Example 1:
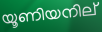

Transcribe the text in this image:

യൂണിയനില്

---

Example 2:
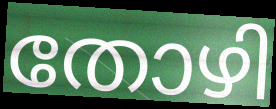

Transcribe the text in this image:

തോഴി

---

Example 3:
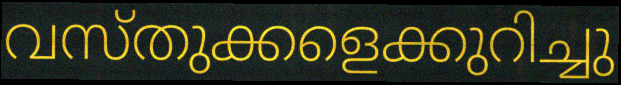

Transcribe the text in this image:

വസ്തുക്കളെക്കുറിച്ചു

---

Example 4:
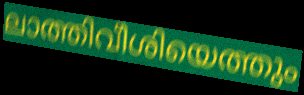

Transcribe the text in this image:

ലാത്തിവീശിയെത്തും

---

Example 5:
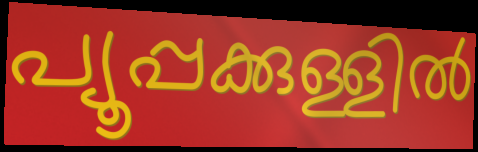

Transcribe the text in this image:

പ്യൂപ്പക്കുള്ളിൽ